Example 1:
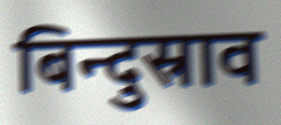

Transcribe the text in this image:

बिन्दुस्राव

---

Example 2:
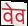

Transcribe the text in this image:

वेव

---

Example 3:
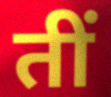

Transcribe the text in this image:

तीं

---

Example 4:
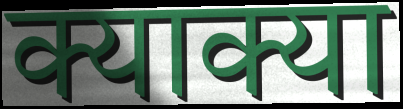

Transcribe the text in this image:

क्याक्या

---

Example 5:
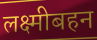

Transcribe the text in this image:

लक्ष्मीबहन